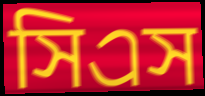
সিএস